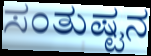
ಸಂತುಷ್ಟನ